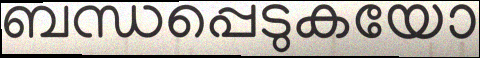
ബന്ധപ്പെടുകയോ